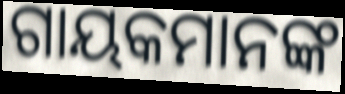
ଗାୟକମାନଙ୍କ